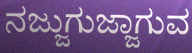
ನಜ್ಜುಗುಜ್ಜಾಗುವ